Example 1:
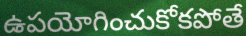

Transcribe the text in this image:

ఉపయోగించుకోకపోతే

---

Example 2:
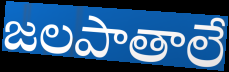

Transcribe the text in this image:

జలపాతాలే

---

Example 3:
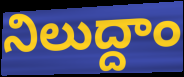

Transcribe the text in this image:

నిలుద్దాం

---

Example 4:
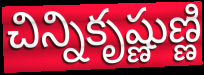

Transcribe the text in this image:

చిన్నికృష్ణుణ్ణి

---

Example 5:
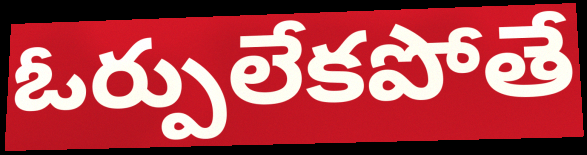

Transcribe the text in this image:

ఓర్పులేకపోతే